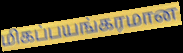
மிகப்பயங்கரமான